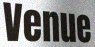
Venue